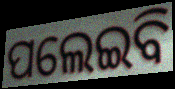
ପଲେଇବି